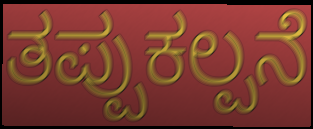
ತಪ್ಪುಕಲ್ಪನೆ